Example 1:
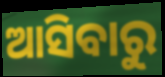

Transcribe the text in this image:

ଆସିବାରୁ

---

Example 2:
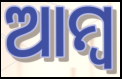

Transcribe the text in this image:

ଆମ୍ୱ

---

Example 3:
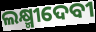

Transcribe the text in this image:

ଲକ୍ଷ୍ମୀଦେବୀ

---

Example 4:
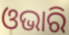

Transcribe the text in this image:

ଓଭାରି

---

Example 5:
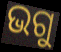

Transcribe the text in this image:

ଭଗୁ